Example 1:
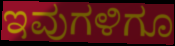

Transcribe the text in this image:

ಇವುಗಳಿಗೂ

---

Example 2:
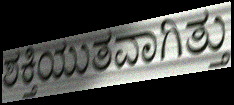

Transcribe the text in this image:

ಶಕ್ತಿಯುತವಾಗಿತ್ತು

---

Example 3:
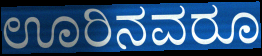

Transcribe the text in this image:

ಊರಿನವರೂ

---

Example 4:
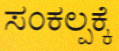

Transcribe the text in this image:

ಸಂಕಲ್ಪಕ್ಕೆ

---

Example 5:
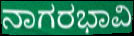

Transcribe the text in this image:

ನಾಗರಭಾವಿ